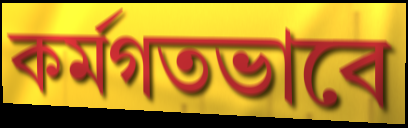
কর্মগতভাবে